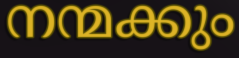
നന്മക്കും